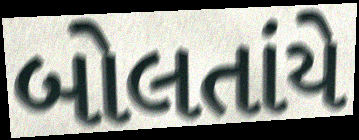
બોલતાંયે